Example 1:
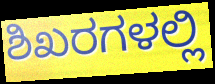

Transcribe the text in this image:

ಶಿಖರಗಳಲ್ಲಿ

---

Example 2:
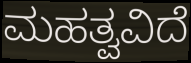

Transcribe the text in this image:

ಮಹತ್ವವಿದೆ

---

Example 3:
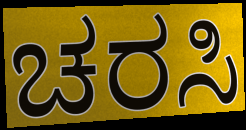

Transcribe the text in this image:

ಚರಸಿ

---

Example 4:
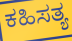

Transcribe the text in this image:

ಕಹಿಸತ್ಯ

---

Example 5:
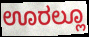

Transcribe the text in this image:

ಊರಲ್ಲೂ